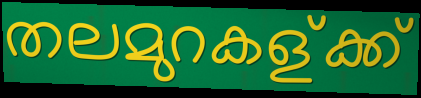
തലമുറകള്ക്ക്